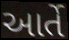
આર્તે